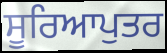
ਸੂਰਿਆਪੁਤਰ